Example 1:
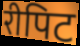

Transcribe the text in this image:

रीपिट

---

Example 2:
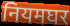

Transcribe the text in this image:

नियमघर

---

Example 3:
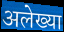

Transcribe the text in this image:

अलेख्या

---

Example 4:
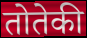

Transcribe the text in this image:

तोतेकी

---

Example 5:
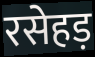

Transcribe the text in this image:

रसेहड़